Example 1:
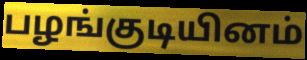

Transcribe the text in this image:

பழங்குடியினம்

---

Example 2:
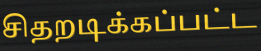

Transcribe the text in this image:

சிதறடிக்கப்பட்ட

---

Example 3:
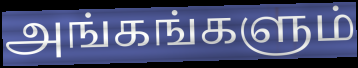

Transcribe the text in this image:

அங்கங்களும்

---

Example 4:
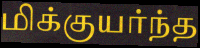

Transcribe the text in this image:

மிக்குயர்ந்த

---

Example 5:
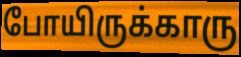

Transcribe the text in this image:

போயிருக்காரு